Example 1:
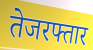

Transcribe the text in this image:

तेजरफ्तार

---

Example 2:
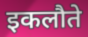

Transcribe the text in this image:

इकलौते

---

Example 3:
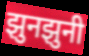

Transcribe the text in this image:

झुनझुनी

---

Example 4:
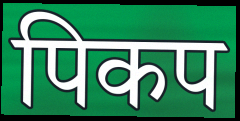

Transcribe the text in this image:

पिकप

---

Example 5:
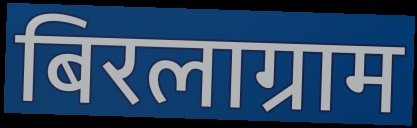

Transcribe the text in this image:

बिरलाग्राम